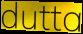
dutta